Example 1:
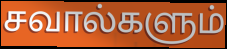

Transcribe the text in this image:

சவால்களும்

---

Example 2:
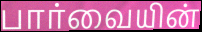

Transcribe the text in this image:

பார்வையின்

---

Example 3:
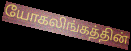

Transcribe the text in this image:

யோகலிங்கத்தின்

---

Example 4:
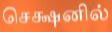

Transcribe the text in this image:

செக்ஷனில்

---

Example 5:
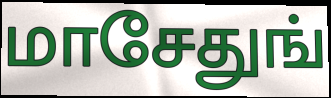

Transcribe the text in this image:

மாசேதுங்